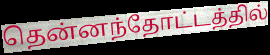
தென்னந்தோட்டத்தில்